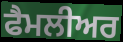
ਫੈਮਲੀਅਰ